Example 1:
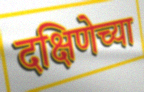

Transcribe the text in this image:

दक्षिणेच्या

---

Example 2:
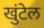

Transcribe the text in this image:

खुंटेल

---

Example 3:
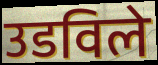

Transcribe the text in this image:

उडविले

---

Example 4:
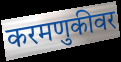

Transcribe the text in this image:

करमणुकीवर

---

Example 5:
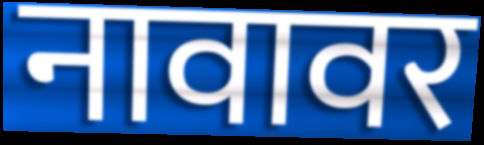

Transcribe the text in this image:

नावावर